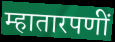
म्हातारपणीं